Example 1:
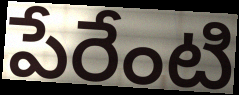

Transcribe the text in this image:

పేరేంటి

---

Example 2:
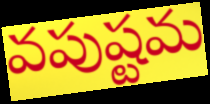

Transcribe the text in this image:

వపుష్టమ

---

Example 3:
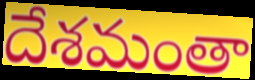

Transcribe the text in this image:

దేశమంతా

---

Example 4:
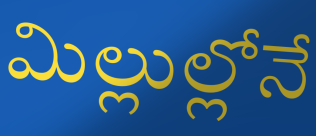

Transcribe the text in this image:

మిల్లుల్లోనే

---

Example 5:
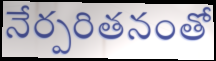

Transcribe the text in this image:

నేర్పరితనంతో